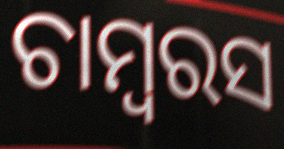
ଚାମ୍ବରସ